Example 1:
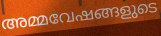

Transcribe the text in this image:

അമ്മവേഷങ്ങളുടെ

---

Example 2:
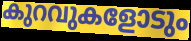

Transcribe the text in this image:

കുറവുകളോടും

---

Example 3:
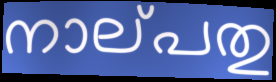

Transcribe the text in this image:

നാല്‌പതു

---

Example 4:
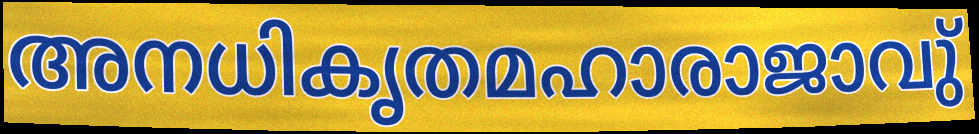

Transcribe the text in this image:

അനധികൃതമഹാരാജാവു്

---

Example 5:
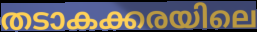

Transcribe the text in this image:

തടാകക്കരയിലെ